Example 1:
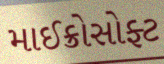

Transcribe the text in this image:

માઈક્રોસોફ્ટ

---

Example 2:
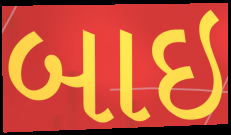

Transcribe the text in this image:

બાઇ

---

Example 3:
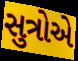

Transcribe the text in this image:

સુત્રોએ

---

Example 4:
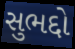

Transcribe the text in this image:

સુભદ્દો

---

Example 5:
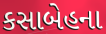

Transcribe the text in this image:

કસાબેહના